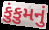
કુંકુમનું